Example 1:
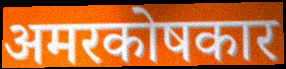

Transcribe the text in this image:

अमरकोषकार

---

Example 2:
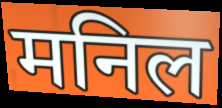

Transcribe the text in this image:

मनिल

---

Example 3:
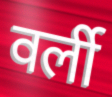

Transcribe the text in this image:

वर्ली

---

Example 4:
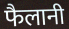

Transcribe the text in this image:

फैलानी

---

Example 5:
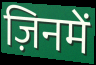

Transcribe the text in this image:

ज़िनमें